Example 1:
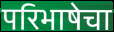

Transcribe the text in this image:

परिभाषेचा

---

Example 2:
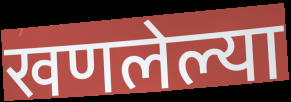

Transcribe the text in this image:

खणलेल्या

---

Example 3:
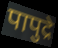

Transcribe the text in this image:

पापुद्रे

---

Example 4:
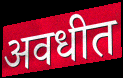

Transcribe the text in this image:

अवधीत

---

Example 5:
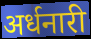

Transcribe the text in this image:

अर्धनारी